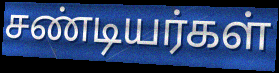
சண்டியர்கள்